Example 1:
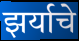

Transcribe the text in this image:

झर्याचे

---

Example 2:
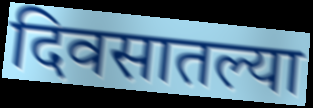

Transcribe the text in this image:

दिवसातल्या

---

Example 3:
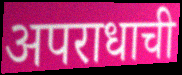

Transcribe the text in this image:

अपराधाची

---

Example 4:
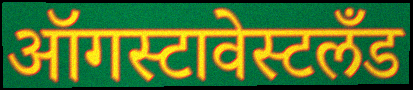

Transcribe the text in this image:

ऑगस्टावेस्टलँड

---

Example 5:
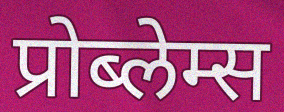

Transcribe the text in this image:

प्रोब्लेम्स